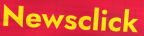
Newsclick